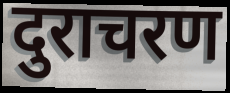
दुराचरण